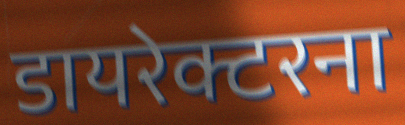
डायरेक्टरना